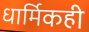
धार्मिकही